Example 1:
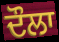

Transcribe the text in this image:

ਦੌਲਾ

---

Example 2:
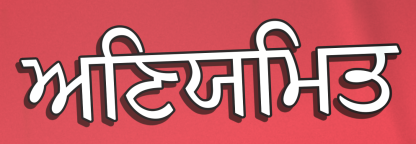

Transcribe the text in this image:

ਅਣਿਯਮਿਤ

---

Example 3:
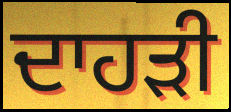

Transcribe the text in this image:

ਦਾਹੜੀ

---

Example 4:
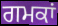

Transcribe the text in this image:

ਗਮਕਾਂ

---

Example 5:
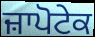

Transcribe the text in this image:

ਜ਼ਾਪੋਟੇਕ